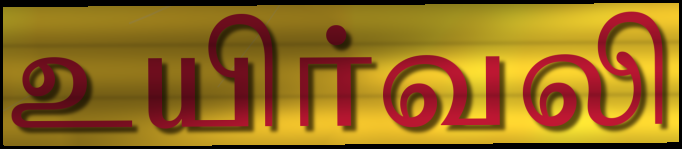
உயிர்வலி